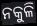
ନକୁଳି